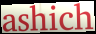
ashich